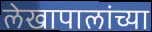
लेखापालांच्या